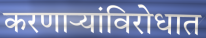
करणाऱ्यांविरोधात